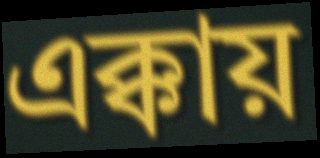
এক্কায়